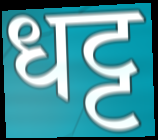
धट्ट